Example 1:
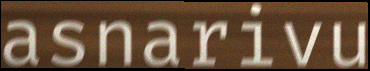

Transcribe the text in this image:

asnarivu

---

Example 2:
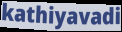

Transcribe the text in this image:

kathiyavadi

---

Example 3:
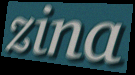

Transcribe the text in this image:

zina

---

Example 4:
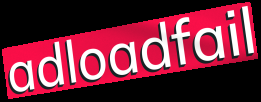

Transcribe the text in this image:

adloadfail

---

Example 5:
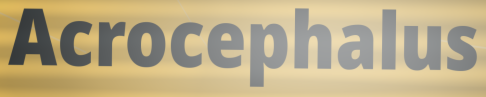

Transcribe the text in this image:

Acrocephalus